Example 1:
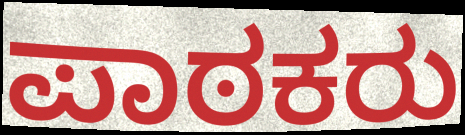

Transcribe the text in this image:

ಪಾಠಕರು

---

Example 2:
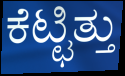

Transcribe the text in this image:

ಕೆಟ್ಟಿತ್ತು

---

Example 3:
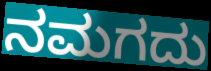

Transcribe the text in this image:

ನಮಗದು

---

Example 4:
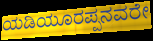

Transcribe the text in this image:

ಯಡಿಯೂರಪ್ಪನವರೇ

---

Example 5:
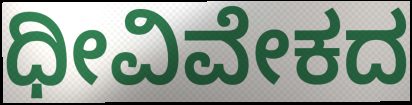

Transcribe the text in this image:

ಧೀವಿವೇಕದ